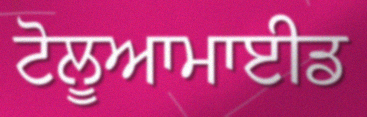
ਟੋਲੂਆਮਾਈਡ